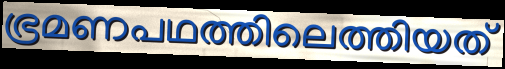
ഭ്രമണപഥത്തിലെത്തിയത്